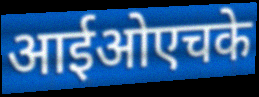
आईओएचके